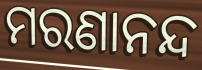
ମରଣାନନ୍ଦ